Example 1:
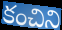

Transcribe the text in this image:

కంచిని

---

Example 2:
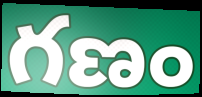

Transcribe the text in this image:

గణం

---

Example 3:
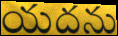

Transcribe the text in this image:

యదను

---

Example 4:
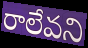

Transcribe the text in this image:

రాలేవని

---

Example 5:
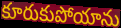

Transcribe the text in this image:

కూరుకుపోయాను